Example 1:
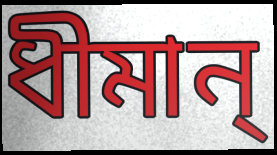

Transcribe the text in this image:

ধীমান্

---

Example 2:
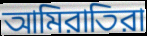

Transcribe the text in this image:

আমিরাতিরা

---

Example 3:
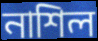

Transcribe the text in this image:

নাশিল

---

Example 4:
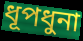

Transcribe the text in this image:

ধূপধুনা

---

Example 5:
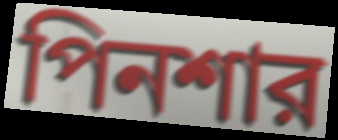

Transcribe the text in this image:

পিনশার